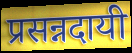
प्रसन्नदायी